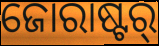
ଜୋରାଷ୍ଟର୍